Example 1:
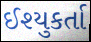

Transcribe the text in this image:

ઈશ્યુકર્તા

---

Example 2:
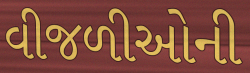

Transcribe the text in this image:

વીજળીઓની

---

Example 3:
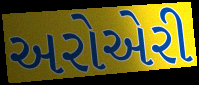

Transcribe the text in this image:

અરોએરી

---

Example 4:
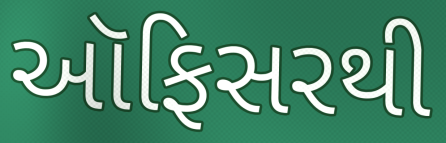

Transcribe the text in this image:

ઑફિસરથી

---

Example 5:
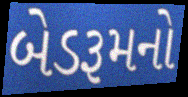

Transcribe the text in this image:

બેડરૂમનો